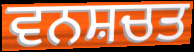
ਵਨਸ਼ਚਤ